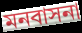
মনবাসনা